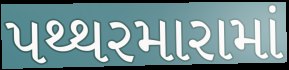
પથ્થરમારામાં